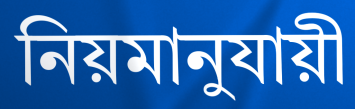
নিয়মানুযায়ী